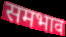
समभाव